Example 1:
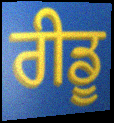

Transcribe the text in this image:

ਰੀਡੂ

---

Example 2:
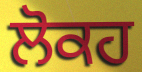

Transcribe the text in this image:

ਲੋਕਹ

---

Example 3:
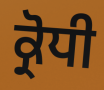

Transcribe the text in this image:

ਕ੍ਰੋਧੀ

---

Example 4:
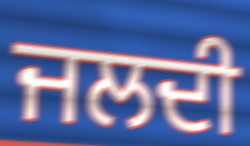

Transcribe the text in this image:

ਜਲਦੀ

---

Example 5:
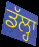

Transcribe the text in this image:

ਡੱਲ੍ਹਾ